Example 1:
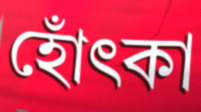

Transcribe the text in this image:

হোঁৎকা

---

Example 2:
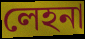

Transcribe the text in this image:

লেহনা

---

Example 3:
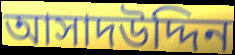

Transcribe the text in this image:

আসাদউদ্দিন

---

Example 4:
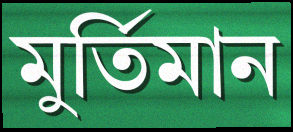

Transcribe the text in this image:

মুর্তিমান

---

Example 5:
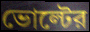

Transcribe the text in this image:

ভোল্টের